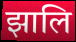
झालि